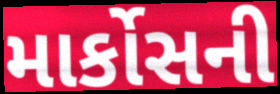
માર્કોસની